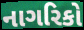
નાગરિકો